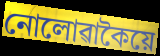
নোলোৱাকৈয়ে